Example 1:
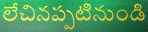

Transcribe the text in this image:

లేచినప్పటినుండి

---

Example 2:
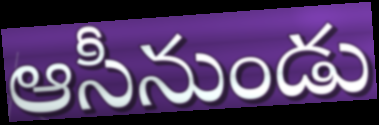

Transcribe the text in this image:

ఆసీనుండు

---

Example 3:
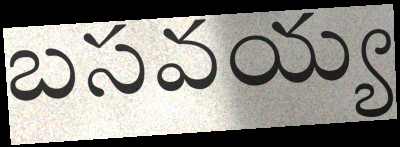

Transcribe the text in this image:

బసవయ్య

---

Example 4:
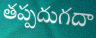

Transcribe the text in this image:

తప్పదుగదా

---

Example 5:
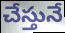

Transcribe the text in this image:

చేస్తునే